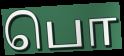
பொ